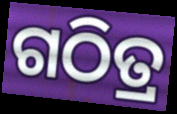
ଗଠିତ୍ର